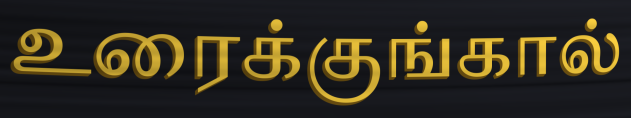
உரைக்குங்கால்